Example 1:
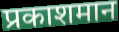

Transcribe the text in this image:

प्रकाशमान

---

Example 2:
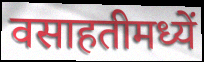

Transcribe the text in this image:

वसाहतीमध्यें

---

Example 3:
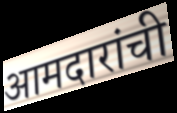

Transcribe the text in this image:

आमदारांची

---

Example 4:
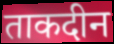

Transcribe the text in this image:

ताकदीन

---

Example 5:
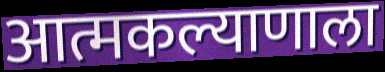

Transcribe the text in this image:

आत्मकल्याणाला